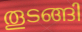
തൂടങ്ങി